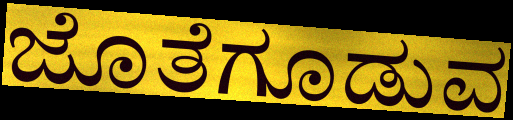
ಜೊತೆಗೂಡುವ